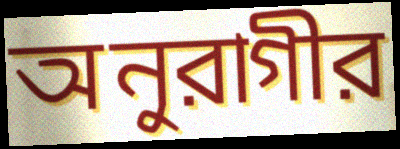
অনুরাগীর